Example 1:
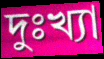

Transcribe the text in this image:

দুঃখ্যা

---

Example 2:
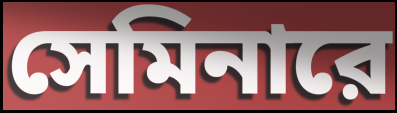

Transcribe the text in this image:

সেমিনারে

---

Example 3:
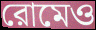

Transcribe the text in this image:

রোমেও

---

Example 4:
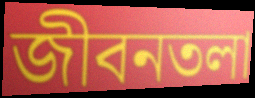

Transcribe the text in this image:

জীবনতলা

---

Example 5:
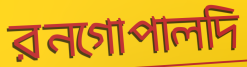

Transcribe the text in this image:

রনগোপালদি